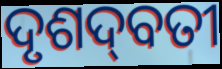
ଦୃଶଦ୍‌ବତୀ